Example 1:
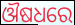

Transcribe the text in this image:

ଔଷଧରେ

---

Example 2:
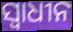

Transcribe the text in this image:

ସ୍ୱାଧୀନ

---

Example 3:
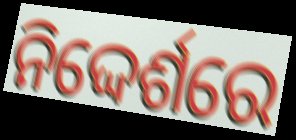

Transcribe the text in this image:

ନିଦ୍ଦେର୍ଶରେ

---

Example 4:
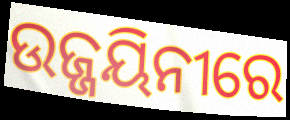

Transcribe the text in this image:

ଉଜ୍ଜୟିନୀରେ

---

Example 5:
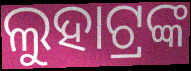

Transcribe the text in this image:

ଲୁହାଟ୍ରଙ୍କ